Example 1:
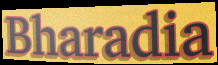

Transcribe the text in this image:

Bharadia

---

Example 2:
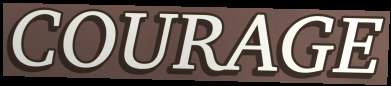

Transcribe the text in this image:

COURAGE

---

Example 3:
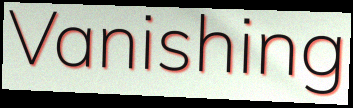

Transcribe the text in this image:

Vanishing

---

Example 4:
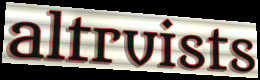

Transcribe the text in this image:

altruists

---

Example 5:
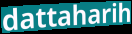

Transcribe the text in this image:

dattaharih